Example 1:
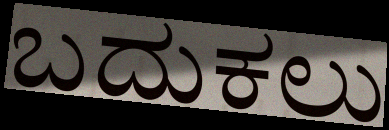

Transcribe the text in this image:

ಬದುಕಲು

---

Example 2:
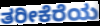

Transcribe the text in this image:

ತರೀಕೆರೆಯ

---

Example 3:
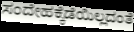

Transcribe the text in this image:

ಸಂದೇಹಕ್ಕೆಡೆಯಿಲ್ಲದಂತೆ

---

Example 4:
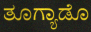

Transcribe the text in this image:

ತೂಗ್ಯಾಡೊ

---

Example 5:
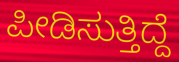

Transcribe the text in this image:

ಪೀಡಿಸುತ್ತಿದ್ದೆ